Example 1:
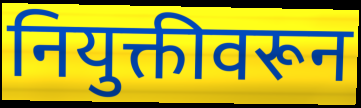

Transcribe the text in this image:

नियुक्तीवरून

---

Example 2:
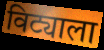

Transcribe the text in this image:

विट्याला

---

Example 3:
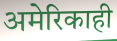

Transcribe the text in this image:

अमेरिकाही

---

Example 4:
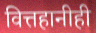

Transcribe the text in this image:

वित्तहानीही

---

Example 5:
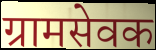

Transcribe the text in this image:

ग्रामसेवक